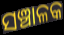
ସଞ୍ଚାଳକ